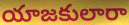
యాజకులారా